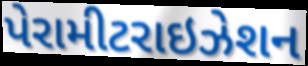
પેરામીટરાઇઝેશન